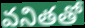
వనితతో